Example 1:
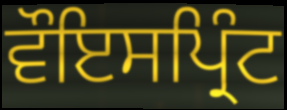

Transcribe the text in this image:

ਵੌਇਸਪ੍ਰਿੰਟ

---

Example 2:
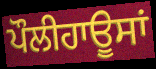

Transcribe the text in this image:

ਪੌਲੀਹਾਊਸਾਂ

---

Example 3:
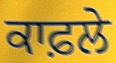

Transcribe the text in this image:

ਕਾਫ਼ਲੇ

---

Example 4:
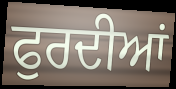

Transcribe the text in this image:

ਫੁਰਦੀਆਂ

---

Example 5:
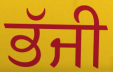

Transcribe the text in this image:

ਭੱਜੀ